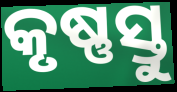
କୃଷ୍ଣସ୍ତୁ